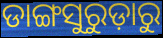
ଡାଙ୍ଗସୁରୁଡ଼ାରୁ